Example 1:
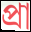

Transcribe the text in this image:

প্রা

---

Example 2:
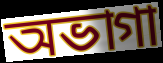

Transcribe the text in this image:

অভাগা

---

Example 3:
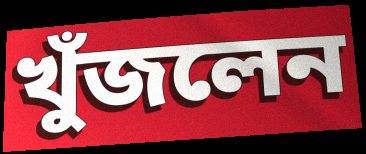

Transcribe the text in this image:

খুঁজলেন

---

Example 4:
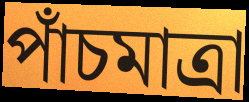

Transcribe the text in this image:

পাঁচমাত্রা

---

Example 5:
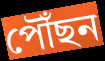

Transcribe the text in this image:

পৌঁছন